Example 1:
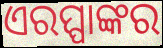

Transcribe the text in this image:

ଏରପ୍ପାଙ୍କର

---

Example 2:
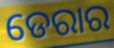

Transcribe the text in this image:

ଡେରାର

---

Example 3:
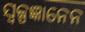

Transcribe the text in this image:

ସ୍ଵଳ୍ପଜ୍ଞାନେନ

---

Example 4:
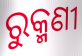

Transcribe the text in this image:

ରୁକ୍ମଣୀ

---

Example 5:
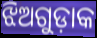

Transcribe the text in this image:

ଝିଅଗୁଡ଼ାକ